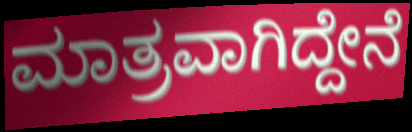
ಮಾತ್ರವಾಗಿದ್ದೇನೆ